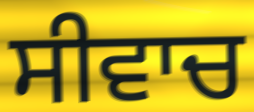
ਸੀਵਾਚ